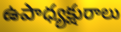
ఉపాధ్యక్షురాలు